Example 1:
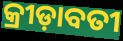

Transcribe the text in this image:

କ୍ରୀଡ଼ାବତୀ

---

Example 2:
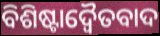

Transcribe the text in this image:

ବିଶିଷ୍ଟାଦ୍ୱୈତବାଦ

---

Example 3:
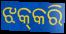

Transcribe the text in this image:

ଝକ୍‌କରି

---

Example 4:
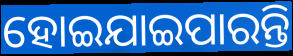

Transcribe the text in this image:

ହୋଇଯାଇପାରନ୍ତି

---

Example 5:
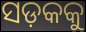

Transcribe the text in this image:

ସଡ଼କକୁ